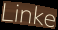
Linke